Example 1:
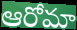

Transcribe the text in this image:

ఆరోమా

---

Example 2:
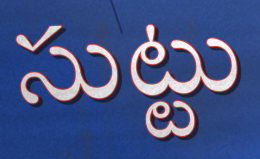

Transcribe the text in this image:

సుట్టు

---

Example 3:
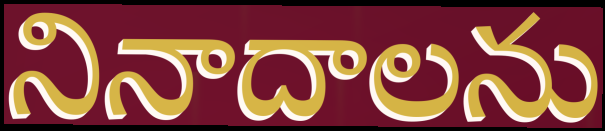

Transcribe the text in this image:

నినాదాలను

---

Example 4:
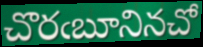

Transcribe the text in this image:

చొరఁబూనినచో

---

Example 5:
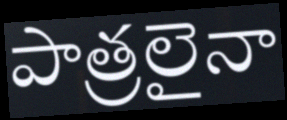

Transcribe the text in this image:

పాత్రలైనా